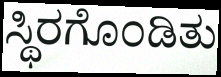
ಸ್ಥಿರಗೊಂಡಿತು